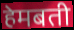
हेमबती